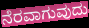
ನೆರವಾಗುವುದು